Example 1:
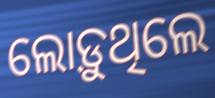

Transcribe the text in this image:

ଲୋଡ଼ୁଥିଲେ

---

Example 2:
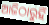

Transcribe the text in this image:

ଆଜିଠାରୁହିଁ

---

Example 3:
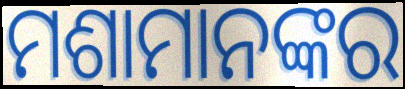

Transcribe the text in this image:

ମଶାମାନଙ୍କର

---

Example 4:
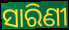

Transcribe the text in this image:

ସାରିଣୀ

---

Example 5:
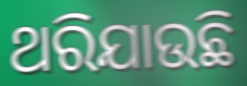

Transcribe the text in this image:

ଥରିଯାଉଛି